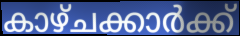
കാഴ്ചക്കാർക്ക്